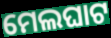
ମେଲଘାଟ